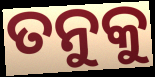
ତନୁକୁ